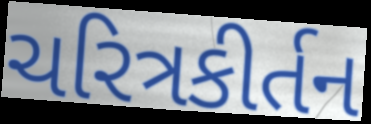
ચરિત્રકીર્તન